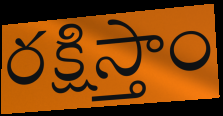
రక్షిస్తాం